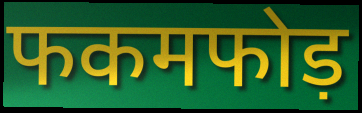
फकमफोड़